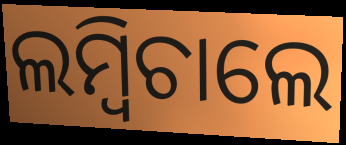
ଲମ୍ବିଚାଲେ